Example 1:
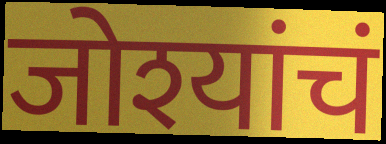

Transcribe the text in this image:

जोश्यांचं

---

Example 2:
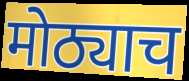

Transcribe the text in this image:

मोठ्याच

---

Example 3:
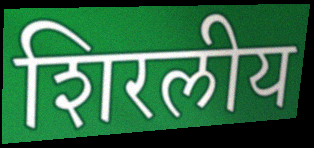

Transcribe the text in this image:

शिरलीय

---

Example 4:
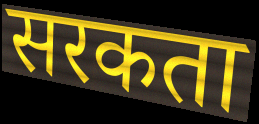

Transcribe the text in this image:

सरकता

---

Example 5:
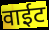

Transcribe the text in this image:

वाईट